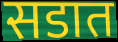
सडात